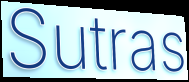
Sutras